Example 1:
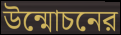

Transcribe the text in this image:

উন্মোচনের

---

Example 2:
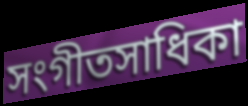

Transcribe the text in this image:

সংগীতসাধিকা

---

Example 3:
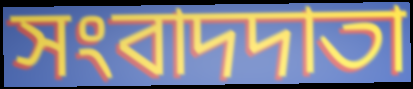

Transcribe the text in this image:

সংবাদদাতা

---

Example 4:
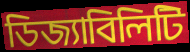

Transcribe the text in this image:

ডিজ্যাবিলিটি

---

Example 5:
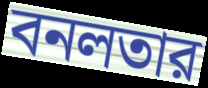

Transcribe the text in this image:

বনলতার